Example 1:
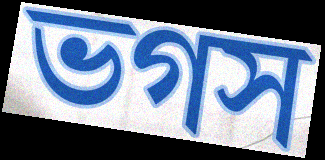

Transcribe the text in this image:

ভগস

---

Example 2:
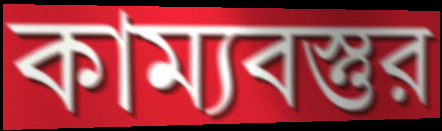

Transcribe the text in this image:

কাম্যবস্তুর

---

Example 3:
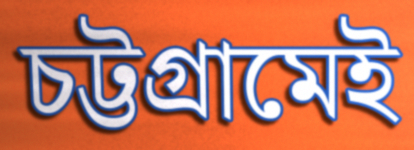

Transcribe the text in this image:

চট্টগ্রামেই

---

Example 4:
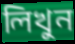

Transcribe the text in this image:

লিখুন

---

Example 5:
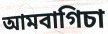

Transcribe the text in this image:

আমবাগিচা